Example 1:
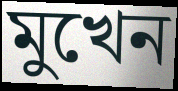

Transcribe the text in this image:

মুখেন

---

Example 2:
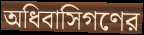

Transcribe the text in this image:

অধিবাসিগণের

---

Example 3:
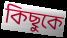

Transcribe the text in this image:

কিছুকে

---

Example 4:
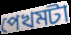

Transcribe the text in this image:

পেখমটা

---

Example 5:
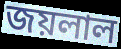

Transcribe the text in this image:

জয়লাল